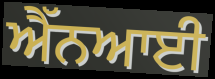
ਐੱਨਆਈ